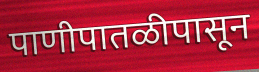
पाणीपातळीपासून